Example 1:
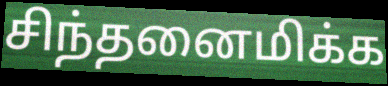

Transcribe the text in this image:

சிந்தனைமிக்க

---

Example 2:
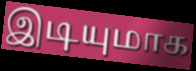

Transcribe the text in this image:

இடியுமாக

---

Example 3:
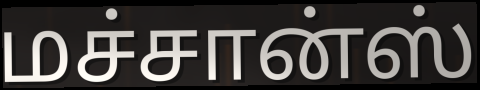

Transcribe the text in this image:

மச்சான்ஸ்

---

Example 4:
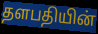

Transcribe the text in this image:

தளபதியின்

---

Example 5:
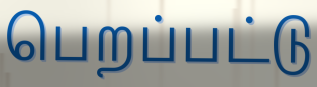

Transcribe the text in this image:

பெறப்பட்டு